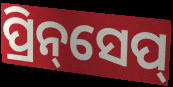
ପ୍ରିନ୍‌ସେପ୍